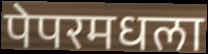
पेपरमधला